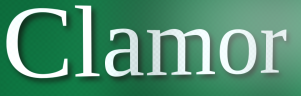
Clamor